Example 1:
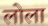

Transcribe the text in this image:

लोला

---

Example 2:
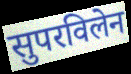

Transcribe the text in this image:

सुपरविलेन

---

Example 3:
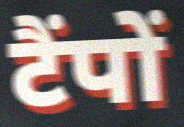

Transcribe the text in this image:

टैंपों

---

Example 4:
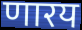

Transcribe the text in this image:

णारय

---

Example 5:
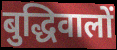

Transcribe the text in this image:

बुद्धिवालों